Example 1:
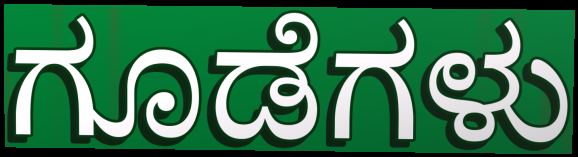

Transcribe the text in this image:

ಗೂಡೆಗಳು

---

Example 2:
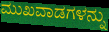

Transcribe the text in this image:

ಮುಖವಾಡಗಳನ್ನು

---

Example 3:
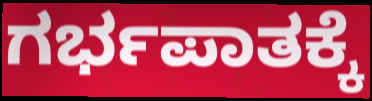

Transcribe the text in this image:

ಗರ್ಭಪಾತಕ್ಕೆ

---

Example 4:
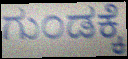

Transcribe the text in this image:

ಗುಂಡಕ್ಕೆ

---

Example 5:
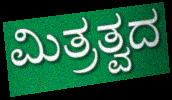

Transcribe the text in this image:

ಮಿತ್ರತ್ವದ